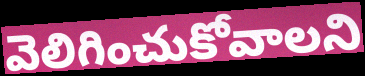
వెలిగించుకోవాలని